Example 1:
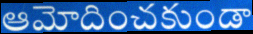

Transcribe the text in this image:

ఆమోదించకుండా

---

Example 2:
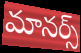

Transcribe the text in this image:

మానర్స్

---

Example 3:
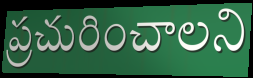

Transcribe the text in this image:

ప్రచురించాలని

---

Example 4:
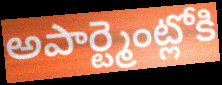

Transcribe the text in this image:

అపార్ట్మెంట్లోకి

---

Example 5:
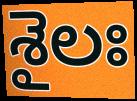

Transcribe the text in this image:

శైలః